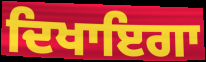
ਦਿਖਾਇਗਾ